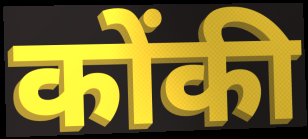
कोंकी